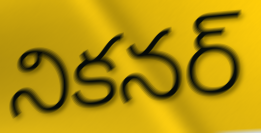
నికనర్